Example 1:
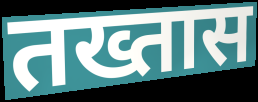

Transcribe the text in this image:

तख्तास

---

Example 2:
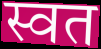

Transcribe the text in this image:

स्वत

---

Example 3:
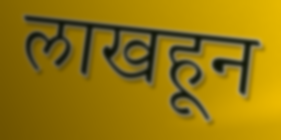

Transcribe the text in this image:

लाखहून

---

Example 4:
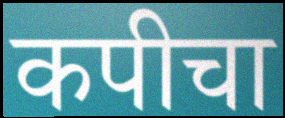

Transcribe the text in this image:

कपीचा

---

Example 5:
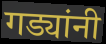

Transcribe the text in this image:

गड्यांनी